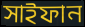
সাইফান